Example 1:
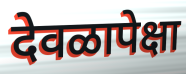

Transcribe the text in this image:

देवळापेक्षा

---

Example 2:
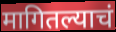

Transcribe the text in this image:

मागितल्याचं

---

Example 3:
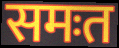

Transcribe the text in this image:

समःत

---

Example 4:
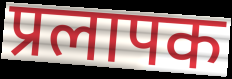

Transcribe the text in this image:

प्रलापक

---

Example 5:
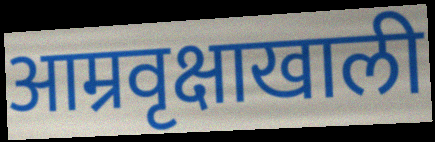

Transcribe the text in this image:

आम्रवृक्षाखाली